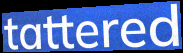
tattered